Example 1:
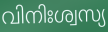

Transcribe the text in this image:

വിനിഃശ്വസ്യ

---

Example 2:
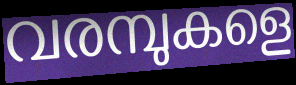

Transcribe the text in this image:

വരമ്പുകളെ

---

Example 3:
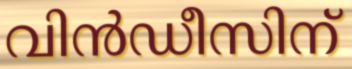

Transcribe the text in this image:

വിൻഡീസിന്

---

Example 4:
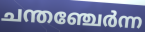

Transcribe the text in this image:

ചന്തഞ്ചേർന്ന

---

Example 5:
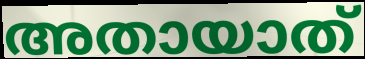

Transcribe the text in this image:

അതായാത്